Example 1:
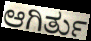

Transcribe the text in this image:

ಆಗಿರ್ತು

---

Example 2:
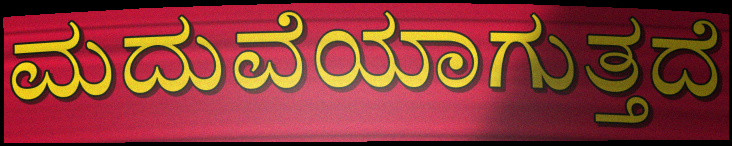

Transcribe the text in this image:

ಮದುವೆಯಾಗುತ್ತದೆ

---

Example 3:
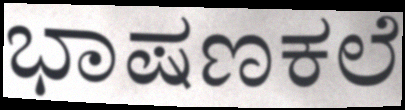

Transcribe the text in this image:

ಭಾಷಣಕಲೆ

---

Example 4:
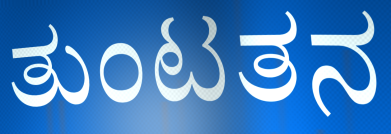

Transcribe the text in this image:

ತುಂಟತನ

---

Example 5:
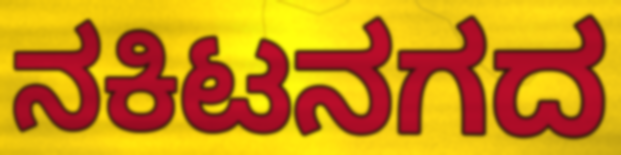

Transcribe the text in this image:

ನಕಿಟನಗದ